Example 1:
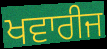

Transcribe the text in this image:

ਖਵਾਰੀਜ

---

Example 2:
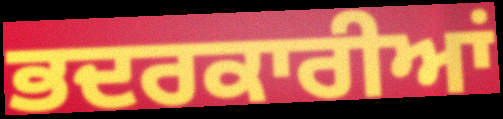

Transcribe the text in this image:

ਭਦਰਕਾਰੀਆਂ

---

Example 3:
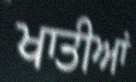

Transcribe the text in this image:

ਖਾਤੀਆਂ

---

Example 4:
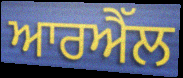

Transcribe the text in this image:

ਆਰਐੱਲ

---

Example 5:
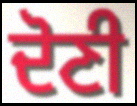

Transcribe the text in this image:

ਦੋਣੀ